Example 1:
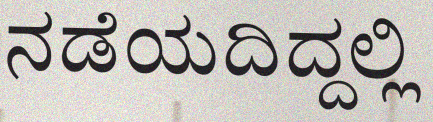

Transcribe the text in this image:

ನಡೆಯದಿದ್ದಲ್ಲಿ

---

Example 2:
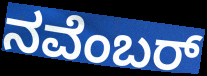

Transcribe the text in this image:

ನವೆಂಬರ್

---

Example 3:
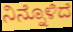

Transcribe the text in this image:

ನಿನ್ನೊಳಿದೆ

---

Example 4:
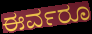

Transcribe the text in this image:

ಈರ್ವರೂ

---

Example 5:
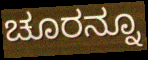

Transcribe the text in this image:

ಚೂರನ್ನೂ